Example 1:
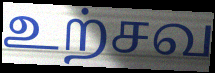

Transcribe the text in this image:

உற்சவ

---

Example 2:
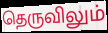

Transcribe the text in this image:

தெருவிலும்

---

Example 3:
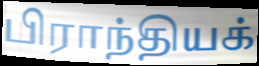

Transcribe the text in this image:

பிராந்தியக்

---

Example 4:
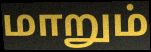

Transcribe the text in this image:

மாறும்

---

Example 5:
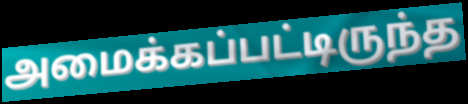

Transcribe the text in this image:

அமைக்கப்பட்டிருந்த